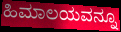
ಹಿಮಾಲಯವನ್ನೂ